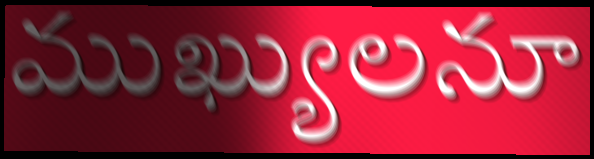
ముఖ్యులనూ